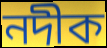
নদীক